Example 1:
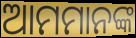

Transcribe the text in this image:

ଆମମାନଙ୍କ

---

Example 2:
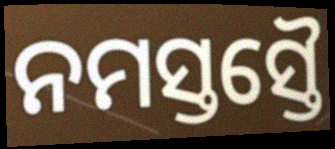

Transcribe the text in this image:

ନମସ୍ତସ୍ତୈ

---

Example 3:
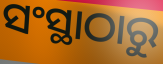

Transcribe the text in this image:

ସଂସ୍ଥାଠାରୁ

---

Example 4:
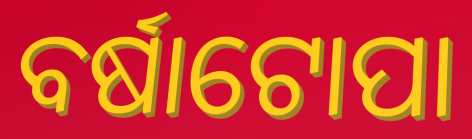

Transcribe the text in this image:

ବର୍ଷାଟୋପା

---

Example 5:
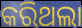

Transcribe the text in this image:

କରିଥଲା